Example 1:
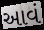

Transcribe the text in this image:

આવં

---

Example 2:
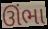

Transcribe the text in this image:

ઊંભા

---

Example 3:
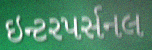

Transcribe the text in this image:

ઇન્ટરપર્સનલ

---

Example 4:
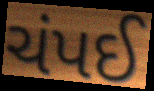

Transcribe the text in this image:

ચંપઈ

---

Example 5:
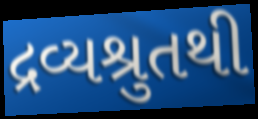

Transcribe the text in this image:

દ્રવ્યશ્રુતથી